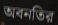
অবনতির